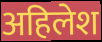
अहिलेश